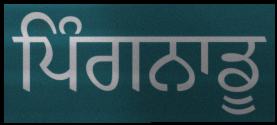
ਪਿੰਗਨਾਡੂ